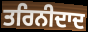
ਤਰਿਨੀਦਾਦ